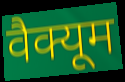
वैक्यूम